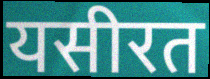
यसीरत